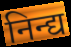
निन्द्य